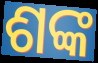
ଶଙ୍କ